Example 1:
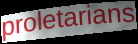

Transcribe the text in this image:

proletarians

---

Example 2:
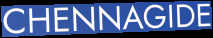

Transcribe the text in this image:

CHENNAGIDE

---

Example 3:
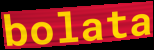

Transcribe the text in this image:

bolata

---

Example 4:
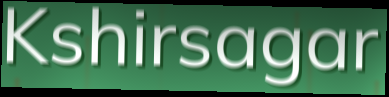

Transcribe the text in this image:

Kshirsagar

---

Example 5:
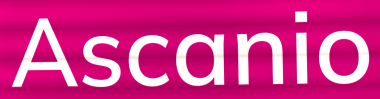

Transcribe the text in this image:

Ascanio